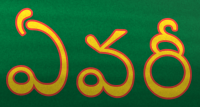
ఏవరీ